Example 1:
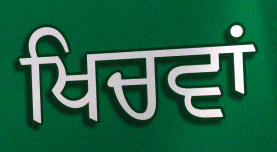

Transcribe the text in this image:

ਖਿਚਵਾਂ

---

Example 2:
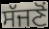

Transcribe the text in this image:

ਸੱਜਣੋਂ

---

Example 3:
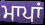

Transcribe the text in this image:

ਮਾਪਾਂ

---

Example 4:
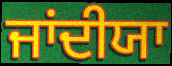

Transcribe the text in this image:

ਜਾਂਦੀਯਾ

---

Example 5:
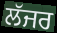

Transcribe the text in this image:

ਲੱਜਰ